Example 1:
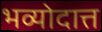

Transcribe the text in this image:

भव्योदात्त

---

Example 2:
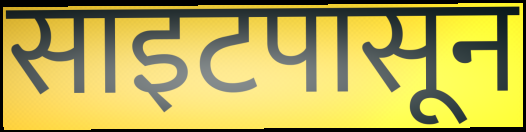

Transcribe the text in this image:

साइटपासून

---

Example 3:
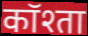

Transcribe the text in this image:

कॉश्ता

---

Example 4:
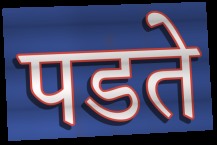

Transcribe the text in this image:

पडते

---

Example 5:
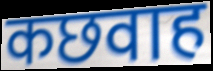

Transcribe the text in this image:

कछवाह